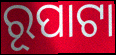
ରୂପାଟା